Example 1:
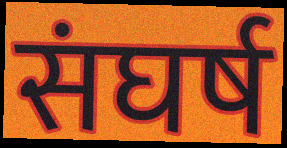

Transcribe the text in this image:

संघर्ष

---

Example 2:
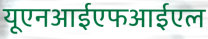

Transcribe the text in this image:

यूएनआईएफआईएल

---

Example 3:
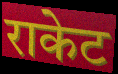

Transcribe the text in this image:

राकेट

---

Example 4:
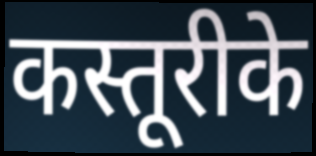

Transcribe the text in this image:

कस्तूरीके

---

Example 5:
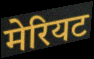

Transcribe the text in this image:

मेरियट